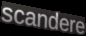
scandere